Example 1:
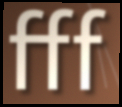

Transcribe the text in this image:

fff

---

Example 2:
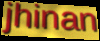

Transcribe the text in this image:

jhinan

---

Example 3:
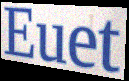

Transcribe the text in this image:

Euet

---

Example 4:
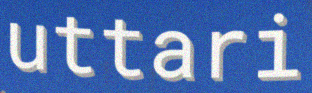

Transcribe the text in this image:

uttari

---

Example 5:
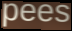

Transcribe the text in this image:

pees